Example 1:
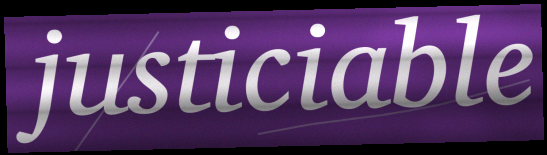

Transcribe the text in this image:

justiciable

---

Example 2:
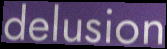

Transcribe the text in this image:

delusion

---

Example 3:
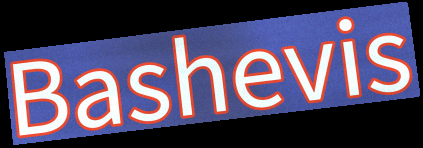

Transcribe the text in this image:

Bashevis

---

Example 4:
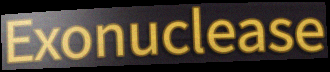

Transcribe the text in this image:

Exonuclease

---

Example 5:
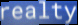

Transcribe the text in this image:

realty